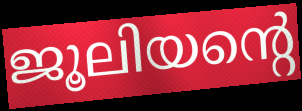
ജൂലിയന്റെ